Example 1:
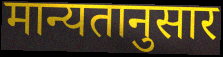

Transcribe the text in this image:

मान्यतानुसार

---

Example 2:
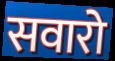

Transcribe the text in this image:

सवारो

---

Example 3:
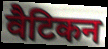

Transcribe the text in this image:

वैटिकन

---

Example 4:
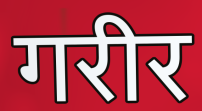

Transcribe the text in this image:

गरीर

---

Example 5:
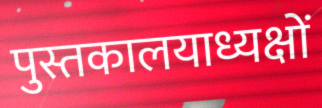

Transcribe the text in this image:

पुस्तकालयाध्यक्षों